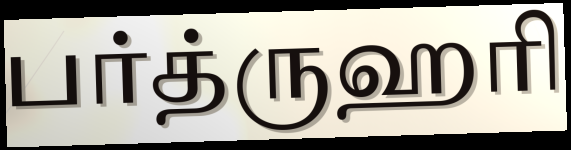
பர்த்ருஹரி